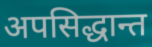
अपसिद्धान्त